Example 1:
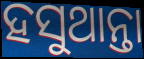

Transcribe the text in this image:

ହସୁଥାନ୍ତା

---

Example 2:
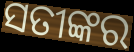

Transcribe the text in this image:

ସତୀଙ୍କର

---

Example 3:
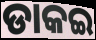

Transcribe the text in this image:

ଡାକଇ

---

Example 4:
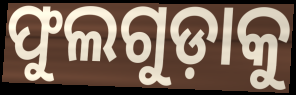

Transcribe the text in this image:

ଫୁଲଗୁଡ଼ାକୁ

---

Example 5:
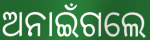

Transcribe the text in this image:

ଅନାଇଁଗଲେ